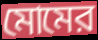
মোমের